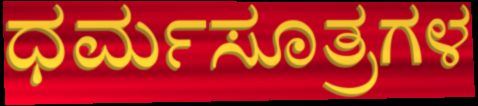
ಧರ್ಮಸೂತ್ರಗಳ